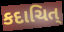
કદાચિત્